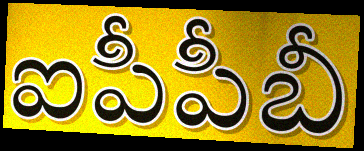
ఐపీపీబీ